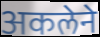
अकलेने